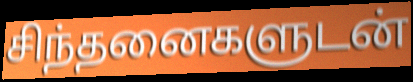
சிந்தனைகளுடன்